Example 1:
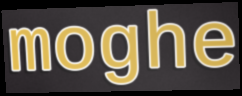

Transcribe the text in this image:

moghe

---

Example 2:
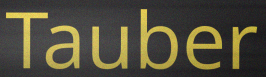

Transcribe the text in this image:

Tauber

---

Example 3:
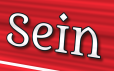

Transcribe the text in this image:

Sein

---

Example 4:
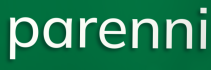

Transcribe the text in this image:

parenni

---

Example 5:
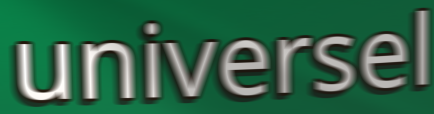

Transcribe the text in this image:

universel